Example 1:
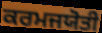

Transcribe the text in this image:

ਕਰਮਜਯੋਤੀ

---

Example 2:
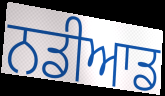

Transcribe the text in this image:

ਨਡੀਆਡ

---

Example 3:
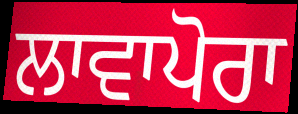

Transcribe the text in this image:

ਲਾਵਾਪੋਰਾ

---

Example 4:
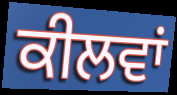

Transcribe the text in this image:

ਕੀਲਵਾਂ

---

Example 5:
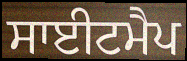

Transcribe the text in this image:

ਸਾਈਟਮੈਪ